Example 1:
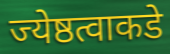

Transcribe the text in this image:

ज्येष्ठत्वाकडे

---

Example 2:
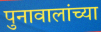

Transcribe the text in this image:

पुनावालांच्या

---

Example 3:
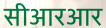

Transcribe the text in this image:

सीआरआर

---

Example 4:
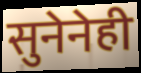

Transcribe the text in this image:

सुनेनेही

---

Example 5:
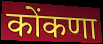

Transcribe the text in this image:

कोंकणा